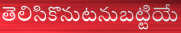
తెలిసికొనుటనుబట్టియే